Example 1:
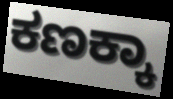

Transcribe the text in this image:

ಕಣಕ್ಕಾ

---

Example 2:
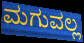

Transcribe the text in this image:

ಮಗುವಲ್ಲ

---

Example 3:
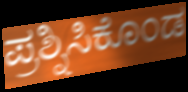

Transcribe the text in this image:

ಪ್ರಶ್ನಿಸಿಕೊಂಡ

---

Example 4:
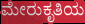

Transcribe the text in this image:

ಮೇರುಕೃತಿಯ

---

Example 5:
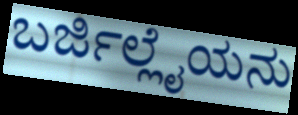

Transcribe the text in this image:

ಬರ್ಜಿಲ್ಲೈಯನು